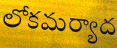
లోకమర్యాద